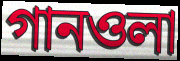
গানওলা